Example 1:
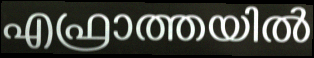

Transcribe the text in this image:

എഫ്രാത്തയിൽ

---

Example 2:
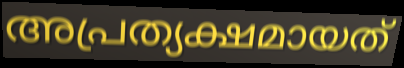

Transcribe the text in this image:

അപ്രത്യക്ഷമായത്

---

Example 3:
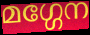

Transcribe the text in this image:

മഗ്ഗേന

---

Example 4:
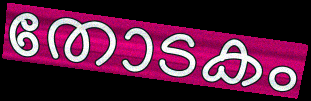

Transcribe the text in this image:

തോടകം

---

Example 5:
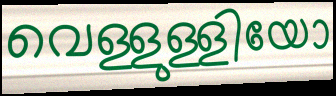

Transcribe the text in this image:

വെള്ളുള്ളിയോ